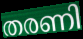
തരണി